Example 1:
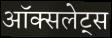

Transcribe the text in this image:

ऑक्सलेट्स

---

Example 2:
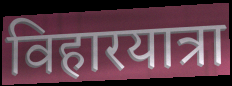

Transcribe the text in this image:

विहारयात्रा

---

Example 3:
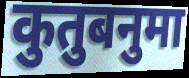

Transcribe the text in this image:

कुतुबनुमा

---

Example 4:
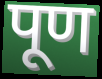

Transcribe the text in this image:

पूण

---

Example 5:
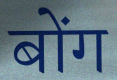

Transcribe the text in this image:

बोंग